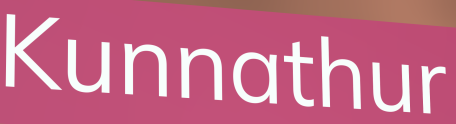
Kunnathur